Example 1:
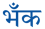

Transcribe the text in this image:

भँक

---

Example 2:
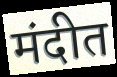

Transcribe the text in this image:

मंदीत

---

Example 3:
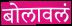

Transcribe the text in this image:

बोलावलं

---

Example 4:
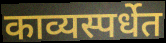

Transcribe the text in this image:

काव्यस्पर्धेत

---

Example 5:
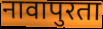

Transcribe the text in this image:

नावापुरता